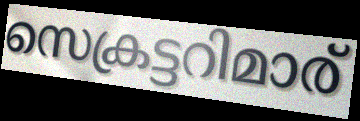
സെക്രട്ടറിമാര്